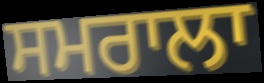
ਸਮਰਾਲਾ